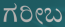
ಗರೀಬ